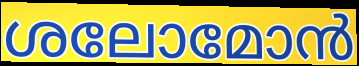
ശലോമോൻ